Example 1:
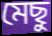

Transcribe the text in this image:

মেছু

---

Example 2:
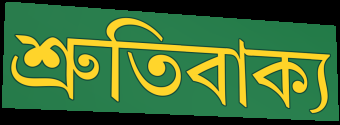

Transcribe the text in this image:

শ্রুতিবাক্য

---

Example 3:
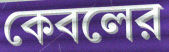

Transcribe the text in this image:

কেবলের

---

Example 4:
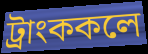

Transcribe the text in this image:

ট্রাংককলে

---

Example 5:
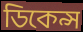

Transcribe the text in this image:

ডিকেন্স